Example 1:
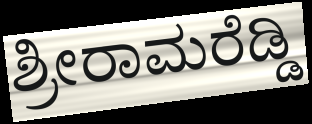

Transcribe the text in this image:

ಶ್ರೀರಾಮರೆಡ್ಡಿ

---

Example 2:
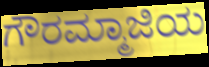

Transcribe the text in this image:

ಗೌರಮ್ಮಾಜಿಯ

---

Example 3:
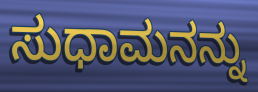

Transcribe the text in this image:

ಸುಧಾಮನನ್ನು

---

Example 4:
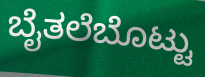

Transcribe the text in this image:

ಬೈತಲೆಬೊಟ್ಟು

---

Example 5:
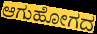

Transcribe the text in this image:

ಆಗುಹೋಗದ